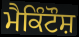
ਮੈਕਿੰਟੌਸ਼